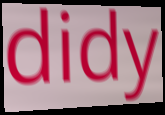
didy